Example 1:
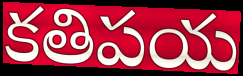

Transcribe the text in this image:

కతిపయ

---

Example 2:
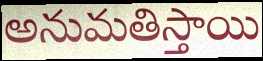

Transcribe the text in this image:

అనుమతిస్తాయి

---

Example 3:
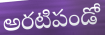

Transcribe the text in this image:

అరటిపండో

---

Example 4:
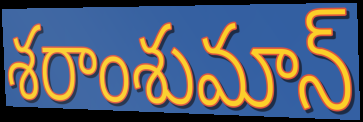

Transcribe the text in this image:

శరాంశుమాన్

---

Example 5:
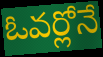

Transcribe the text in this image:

ఓవర్లోనే